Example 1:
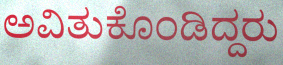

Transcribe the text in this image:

ಅವಿತುಕೊಂಡಿದ್ದರು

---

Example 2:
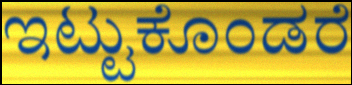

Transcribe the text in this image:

ಇಟ್ಟುಕೊಂಡರೆ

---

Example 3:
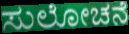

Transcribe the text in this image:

ಸುಲೋಚನೆ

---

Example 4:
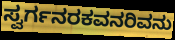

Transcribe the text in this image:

ಸ್ವರ್ಗನರಕವನರಿವನು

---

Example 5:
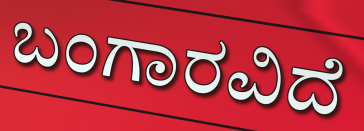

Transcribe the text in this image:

ಬಂಗಾರವಿದೆ